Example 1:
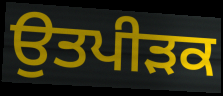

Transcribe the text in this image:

ਉਤਪੀੜਕ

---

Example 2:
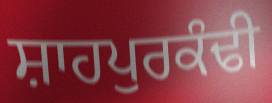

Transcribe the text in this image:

ਸ਼ਾਹਪੁਰਕੰਢੀ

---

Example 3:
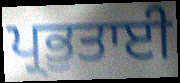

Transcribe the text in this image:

ਪ੍ਰਭੁਤਾਈ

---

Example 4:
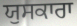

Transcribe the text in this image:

ਯੁਸਕਾਰਾ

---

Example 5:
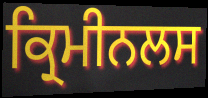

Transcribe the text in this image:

ਕ੍ਰਿਮੀਨਲਸ